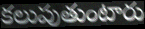
కలుపుతుంటారు